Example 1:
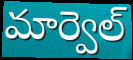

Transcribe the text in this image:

మార్వెల్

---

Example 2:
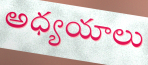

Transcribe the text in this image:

అధ్యయాలు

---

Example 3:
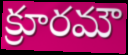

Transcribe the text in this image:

క్రూరమౌ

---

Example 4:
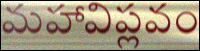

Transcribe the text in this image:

మహావిప్లవం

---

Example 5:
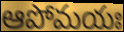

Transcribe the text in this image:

ఆపోమయః